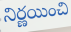
నిర్ణయించి